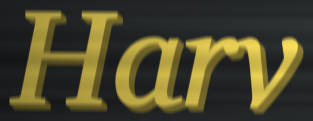
Harv